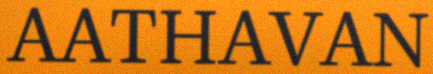
AATHAVAN